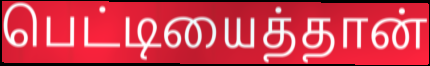
பெட்டியைத்தான்